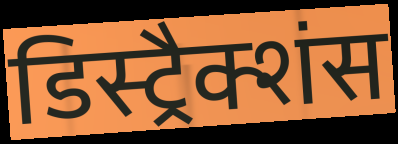
डिस्ट्रैक्शंस